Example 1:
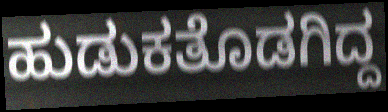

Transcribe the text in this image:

ಹುಡುಕತೊಡಗಿದ್ದ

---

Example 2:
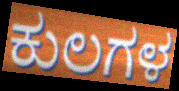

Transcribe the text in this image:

ಕುಲಗಳ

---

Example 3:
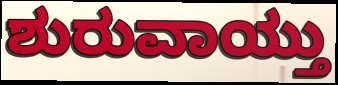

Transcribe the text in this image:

ಶುರುವಾಯ್ತು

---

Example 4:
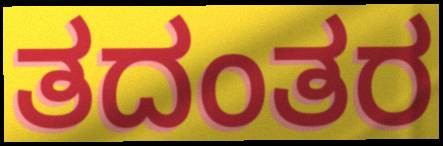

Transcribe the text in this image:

ತದಂತರ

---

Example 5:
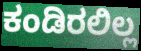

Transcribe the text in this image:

ಕಂಡಿರಲಿಲ್ಲ